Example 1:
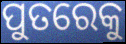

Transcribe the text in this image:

ପୁତରେକୁ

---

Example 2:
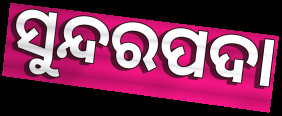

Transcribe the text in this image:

ସୁନ୍ଦରପଦା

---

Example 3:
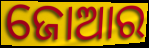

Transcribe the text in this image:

ଜୋଆର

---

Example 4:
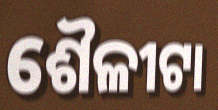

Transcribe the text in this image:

ଶୈଳୀଟା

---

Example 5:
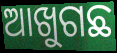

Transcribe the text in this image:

ଆଖୁଗଛ